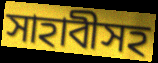
সাহাবীসহ